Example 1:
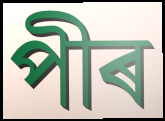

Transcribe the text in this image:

পীৰ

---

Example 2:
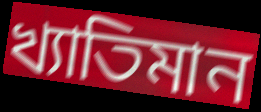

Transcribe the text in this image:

খ্যাতিমান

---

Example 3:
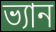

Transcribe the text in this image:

ভ্যান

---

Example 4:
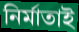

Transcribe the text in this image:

নিৰ্মাতাই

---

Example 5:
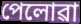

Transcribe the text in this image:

পেলোৱা